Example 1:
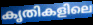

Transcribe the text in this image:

കൃതികളിലെ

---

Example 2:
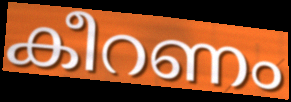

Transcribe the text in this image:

കീറണം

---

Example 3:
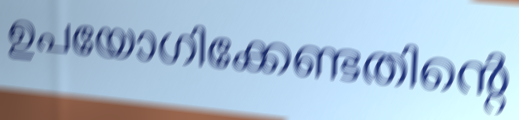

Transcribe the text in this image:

ഉപയോഗിക്കേണ്ടതിന്റെ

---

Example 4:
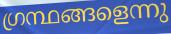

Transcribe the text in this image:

ഗ്രന്ഥങ്ങളെന്നു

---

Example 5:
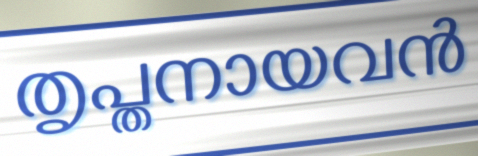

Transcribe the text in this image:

തൃപ്തനായവൻ